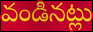
వండినట్లు